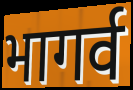
भागर्व